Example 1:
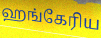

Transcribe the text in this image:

ஹங்கேரிய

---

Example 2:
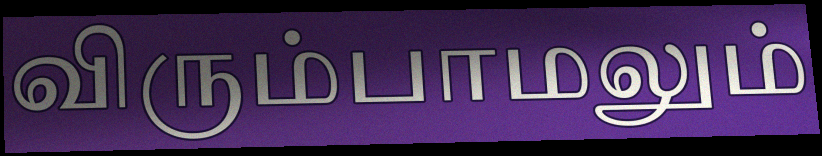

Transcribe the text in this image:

விரும்பாமலும்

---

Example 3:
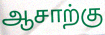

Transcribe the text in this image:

ஆசாற்கு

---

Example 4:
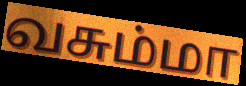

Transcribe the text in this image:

வசும்மா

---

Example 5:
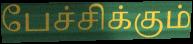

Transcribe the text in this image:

பேச்சிக்கும்